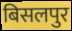
बिसलपुर